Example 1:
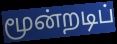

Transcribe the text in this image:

மூன்றடிப்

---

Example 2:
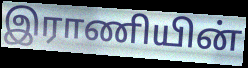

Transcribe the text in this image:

இராணியின்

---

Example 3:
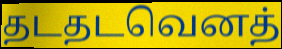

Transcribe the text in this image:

தடதடவெனத்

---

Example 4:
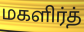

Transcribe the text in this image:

மகளிர்த்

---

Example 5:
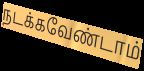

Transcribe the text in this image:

நடக்கவேண்டாம்